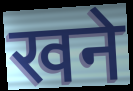
खने